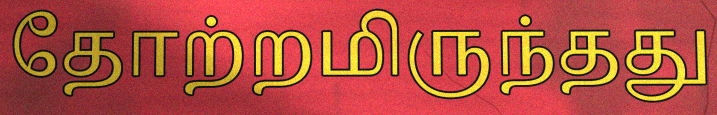
தோற்றமிருந்தது